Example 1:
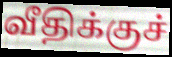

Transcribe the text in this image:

வீதிக்குச்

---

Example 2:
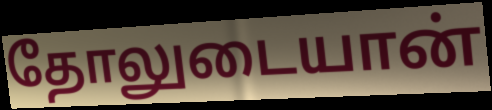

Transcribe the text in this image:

தோலுடையான்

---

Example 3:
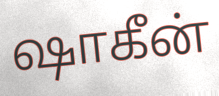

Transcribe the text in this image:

ஷாகீன்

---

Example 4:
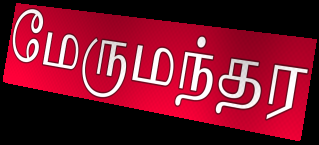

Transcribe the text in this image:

மேருமந்தர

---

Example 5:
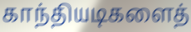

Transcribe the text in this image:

காந்தியடிகளைத்